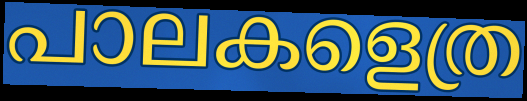
പാലകളെത്ര